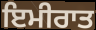
ਇਮੀਰਾਤ